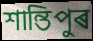
শান্তিপুৰ